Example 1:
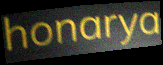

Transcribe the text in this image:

honarya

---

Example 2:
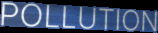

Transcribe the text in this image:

POLLUTION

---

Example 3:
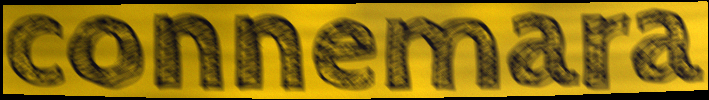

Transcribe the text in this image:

connemara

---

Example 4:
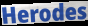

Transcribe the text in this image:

Herodes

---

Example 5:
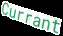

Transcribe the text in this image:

Currant